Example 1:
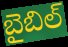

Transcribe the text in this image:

బైబిల్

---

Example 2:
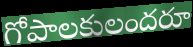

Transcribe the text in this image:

గోపాలకులందరూ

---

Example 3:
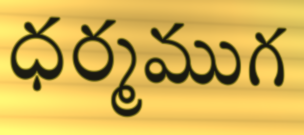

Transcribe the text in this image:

ధర్మముగ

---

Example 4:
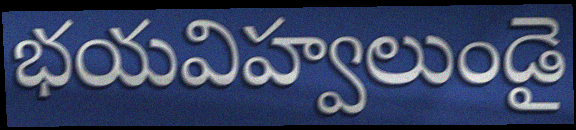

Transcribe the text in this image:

భయవిహ్వలుండై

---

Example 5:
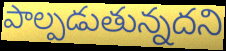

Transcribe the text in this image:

పాల్పడుతున్నదని